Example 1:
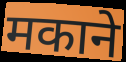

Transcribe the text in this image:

मकाने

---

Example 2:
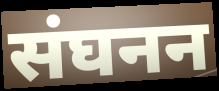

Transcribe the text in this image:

संघनन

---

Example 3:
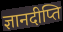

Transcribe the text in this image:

ज्ञानदीप्ति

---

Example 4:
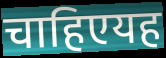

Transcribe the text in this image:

चाहिएयह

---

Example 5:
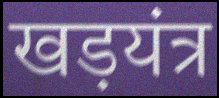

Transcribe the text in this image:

खड़यंत्र